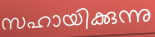
സഹായിക്കുന്നു